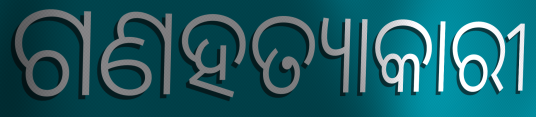
ଗଣହତ୍ୟାକାରୀ